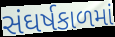
સંઘર્ષકાળમાં